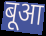
बूआ